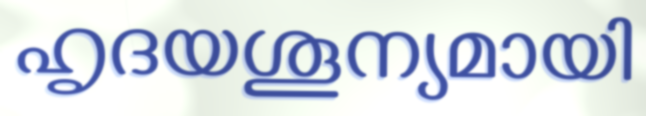
ഹൃദയശൂന്യമായി